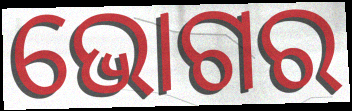
ଭୋଗର